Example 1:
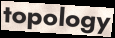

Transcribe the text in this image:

topology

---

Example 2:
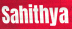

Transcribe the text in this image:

Sahithya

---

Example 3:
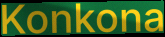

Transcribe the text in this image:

Konkona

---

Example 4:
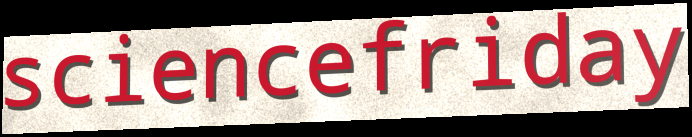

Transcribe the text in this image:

sciencefriday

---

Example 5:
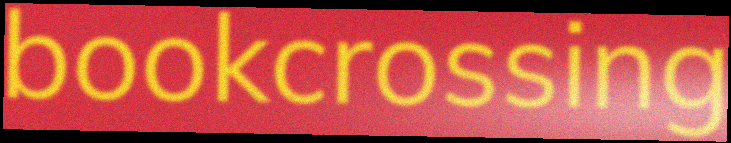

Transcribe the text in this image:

bookcrossing